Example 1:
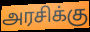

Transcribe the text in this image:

அரசிக்கு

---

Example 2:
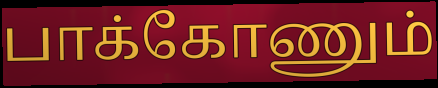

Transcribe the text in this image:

பாக்கோணும்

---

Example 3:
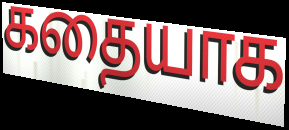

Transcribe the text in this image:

கதையாக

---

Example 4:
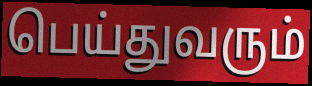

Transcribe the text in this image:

பெய்துவரும்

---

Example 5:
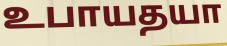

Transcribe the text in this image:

உபாயதயா